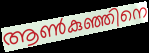
ആൺകുഞ്ഞിനെ